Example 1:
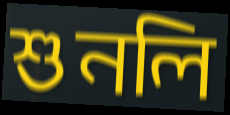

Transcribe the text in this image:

শুনলি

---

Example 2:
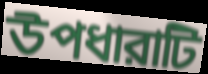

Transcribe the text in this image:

উপধারাটি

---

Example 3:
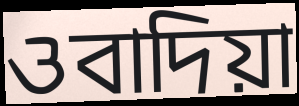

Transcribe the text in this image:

ওবাদিয়া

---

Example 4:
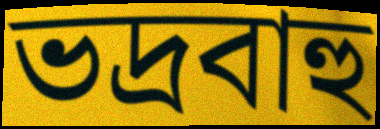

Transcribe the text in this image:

ভদ্রবাহু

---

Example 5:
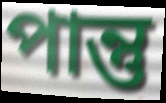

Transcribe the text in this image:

পান্তু